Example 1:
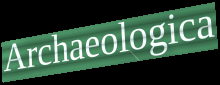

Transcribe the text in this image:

Archaeologica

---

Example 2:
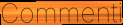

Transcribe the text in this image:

Commenti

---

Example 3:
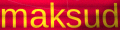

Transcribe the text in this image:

maksud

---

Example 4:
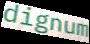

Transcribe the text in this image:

dignum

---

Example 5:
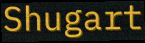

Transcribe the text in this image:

Shugart